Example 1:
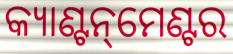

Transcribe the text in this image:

କ୍ୟାଣ୍ଟନ୍‌ମେଣ୍ଟର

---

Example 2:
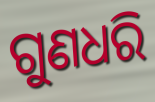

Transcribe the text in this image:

ଗୁଣଧରି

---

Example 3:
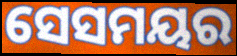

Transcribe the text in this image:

ସେସମୟର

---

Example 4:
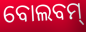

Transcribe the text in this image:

ବୋଲବମ୍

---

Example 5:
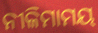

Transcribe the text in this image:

ନୀଳିମାମୟ